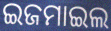
ଇଜମାଇଲ